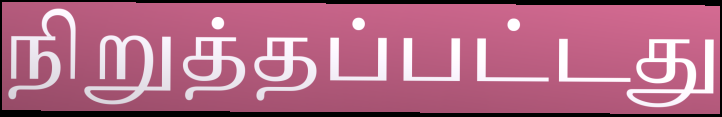
நிறுத்தப்பட்டது